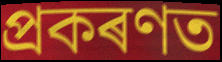
প্ৰকৰণত